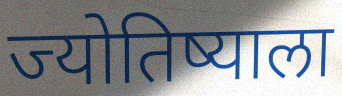
ज्योतिष्याला